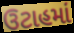
ઉટાહમાં